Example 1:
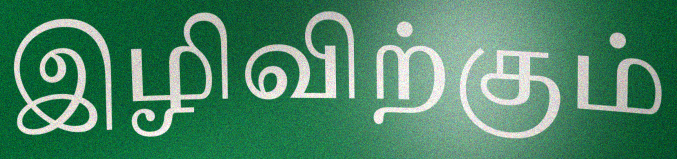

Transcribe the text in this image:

இழிவிற்கும்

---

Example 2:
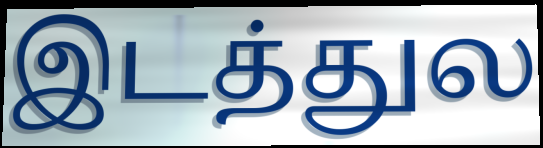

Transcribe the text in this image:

இடத்துல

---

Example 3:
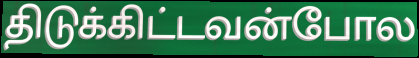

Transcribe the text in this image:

திடுக்கிட்டவன்போல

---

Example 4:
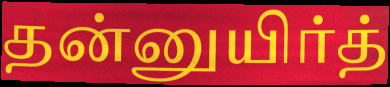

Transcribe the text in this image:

தன்னுயிர்த்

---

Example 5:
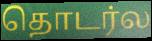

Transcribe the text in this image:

தொடர்ல